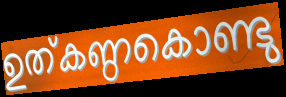
ഉത്കണ്ഠകൊണ്ടു